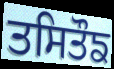
ਤਸਿਤੌਙ